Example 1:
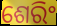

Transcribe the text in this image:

ଶେରିଂ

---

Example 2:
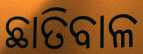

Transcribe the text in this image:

ଛାତିବାଳ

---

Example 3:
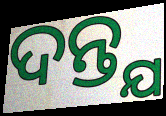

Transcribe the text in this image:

ଦନ୍ତ୍ଯ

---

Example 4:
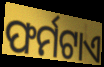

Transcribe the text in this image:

ଫର୍ମଟାଏ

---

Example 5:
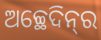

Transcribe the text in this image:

ଅଚ୍ଛେଦିନ୍‌ର